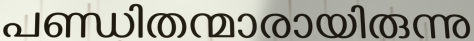
പണ്ഡിതന്മാരായിരുന്നു